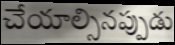
చేయాల్సినప్పుడు